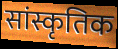
सांस्‍कृतिक